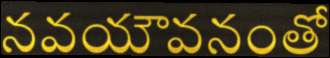
నవయౌవనంతో